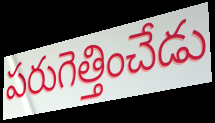
పరుగెత్తించేడు